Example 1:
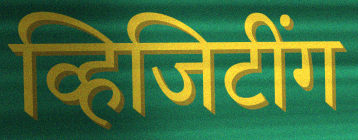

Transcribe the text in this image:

व्हिजिटींग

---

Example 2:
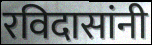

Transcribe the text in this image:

रविदासांनी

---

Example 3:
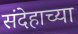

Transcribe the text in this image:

संदेहाच्या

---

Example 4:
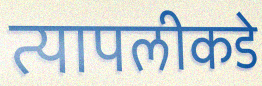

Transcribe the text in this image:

त्यापलीकडे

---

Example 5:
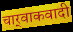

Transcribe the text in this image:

चार्वाकवादी